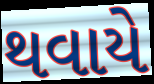
થવાયે